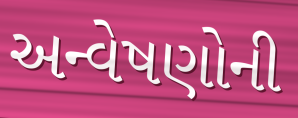
અન્વેષણોની